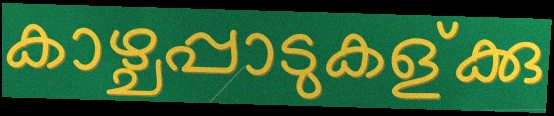
കാഴ്ചപ്പാടുകള്ക്കു